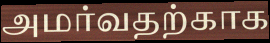
அமர்வதற்காக